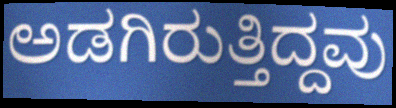
ಅಡಗಿರುತ್ತಿದ್ದವು